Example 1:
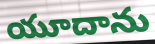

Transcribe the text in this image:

యూదాను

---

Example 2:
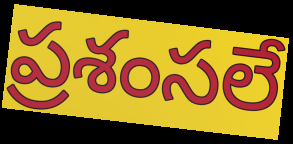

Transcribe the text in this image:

ప్రశంసలే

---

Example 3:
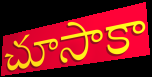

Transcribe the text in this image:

చూసాకా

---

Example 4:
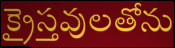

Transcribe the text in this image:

క్రైస్తవులతోను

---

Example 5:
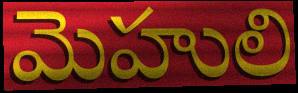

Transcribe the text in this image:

మెహులి